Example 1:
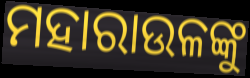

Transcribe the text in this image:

ମହାରାଉଳଙ୍କୁ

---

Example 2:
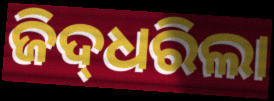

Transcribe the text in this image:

ଜିଦ୍‌ଧରିଲା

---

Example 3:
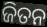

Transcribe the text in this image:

ଜିତନ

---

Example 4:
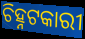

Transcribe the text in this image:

ଚିହ୍ନଟକାରୀ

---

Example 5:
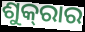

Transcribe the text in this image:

ଶୁକ୍‌ରାର